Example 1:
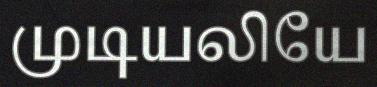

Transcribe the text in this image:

முடியலியே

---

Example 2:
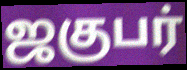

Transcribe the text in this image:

ஜகுபர்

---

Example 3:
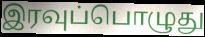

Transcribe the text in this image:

இரவுப்பொழுது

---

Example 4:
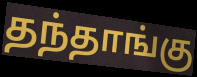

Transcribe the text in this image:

தந்தாங்கு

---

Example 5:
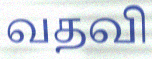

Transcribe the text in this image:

வதவி